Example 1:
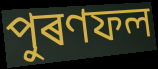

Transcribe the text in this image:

পুৰণফল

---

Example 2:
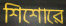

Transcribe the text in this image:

শিশোৱে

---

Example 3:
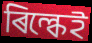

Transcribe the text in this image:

ৰিল্কেই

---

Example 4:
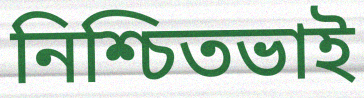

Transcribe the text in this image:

নিশ্চিতভাই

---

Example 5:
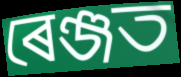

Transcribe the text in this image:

ৰেঞ্জত